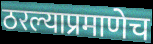
ठरल्याप्रमाणेच